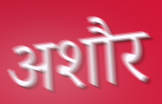
अशौर